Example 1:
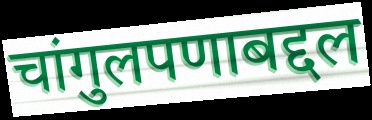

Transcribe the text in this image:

चांगुलपणाबद्दल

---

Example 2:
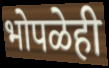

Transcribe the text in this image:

भोपळेही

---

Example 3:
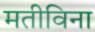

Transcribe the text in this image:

मतीविना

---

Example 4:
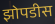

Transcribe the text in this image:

झोपडीस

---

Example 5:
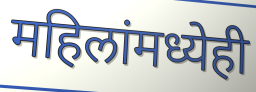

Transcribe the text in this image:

महिलांमध्येही